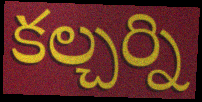
కల్చర్ని